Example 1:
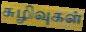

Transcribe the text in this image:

சுழிவுகள்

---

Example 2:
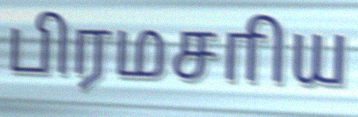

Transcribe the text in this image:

பிரமசரிய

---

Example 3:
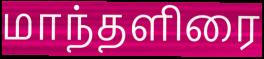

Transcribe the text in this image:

மாந்தளிரை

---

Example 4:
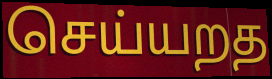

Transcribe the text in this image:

செய்யறத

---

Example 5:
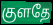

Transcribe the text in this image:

குளதே